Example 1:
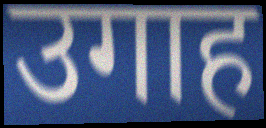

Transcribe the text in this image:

उगाह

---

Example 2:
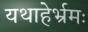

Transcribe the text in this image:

यथाहेर्भ्रमः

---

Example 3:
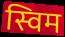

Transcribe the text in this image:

स्विम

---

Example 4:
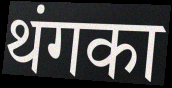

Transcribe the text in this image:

थंगका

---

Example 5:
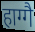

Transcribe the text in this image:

हाग्गै